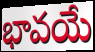
భావయే